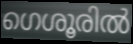
ഗെശൂരിൽ